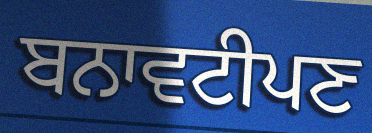
ਬਨਾਵਟੀਪਣ